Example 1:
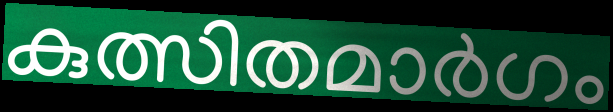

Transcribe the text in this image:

കുത്സിതമാർഗം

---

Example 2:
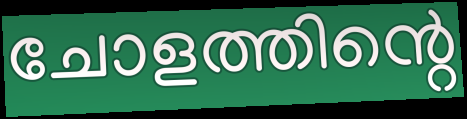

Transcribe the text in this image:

ചോളത്തിന്റെ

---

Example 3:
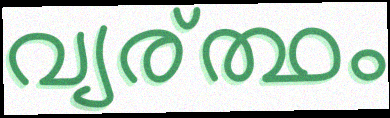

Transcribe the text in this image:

വ്യര്ത്ഥം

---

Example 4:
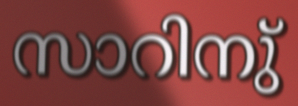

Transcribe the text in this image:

സാറിനു്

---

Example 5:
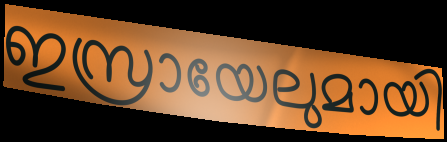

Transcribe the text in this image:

ഇസ്രായേലുമായി